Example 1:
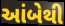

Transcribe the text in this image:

આંબેથી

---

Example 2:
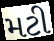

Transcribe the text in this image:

મટી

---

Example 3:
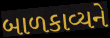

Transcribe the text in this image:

બાળકાવ્યને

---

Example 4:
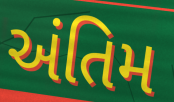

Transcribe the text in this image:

અંતિમ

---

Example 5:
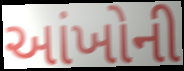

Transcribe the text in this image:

આંખોની